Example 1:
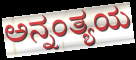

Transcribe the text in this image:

ಅನ್ನಂತ್ಯಯ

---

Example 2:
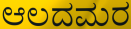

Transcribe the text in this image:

ಆಲದಮರ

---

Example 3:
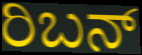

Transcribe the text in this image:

ರಿಬನ್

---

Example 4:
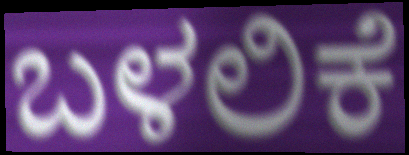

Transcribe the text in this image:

ಬಳಲಿಕೆ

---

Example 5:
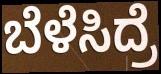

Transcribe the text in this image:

ಬೆಳೆಸಿದ್ರೆ